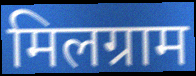
मिलग्राम